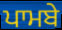
ਪਾਮਬੇ